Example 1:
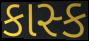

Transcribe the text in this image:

કાસ્ક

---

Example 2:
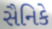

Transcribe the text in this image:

સૈનિકે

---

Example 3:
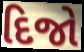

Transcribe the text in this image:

દિજો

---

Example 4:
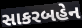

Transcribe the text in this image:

સાકરબહેન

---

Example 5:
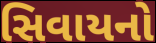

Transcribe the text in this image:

સિવાયનો